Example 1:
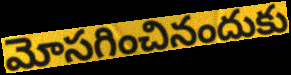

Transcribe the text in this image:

మోసగించినందుకు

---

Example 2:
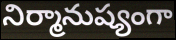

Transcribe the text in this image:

నిర్మానుష్యంగా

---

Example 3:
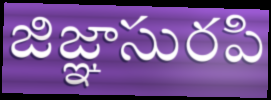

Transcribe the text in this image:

జిజ్ఞాసురపి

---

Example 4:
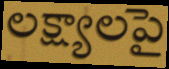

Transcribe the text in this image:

లక్ష్యాలపై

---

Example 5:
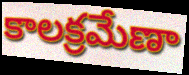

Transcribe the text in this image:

కాలక్రమేణా